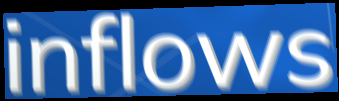
inflows